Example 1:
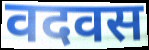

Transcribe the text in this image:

वदवस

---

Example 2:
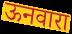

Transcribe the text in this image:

ऊनवारा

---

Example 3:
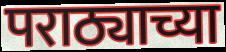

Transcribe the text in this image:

पराठ्याच्या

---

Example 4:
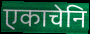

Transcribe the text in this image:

एकाचेनि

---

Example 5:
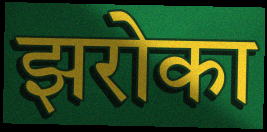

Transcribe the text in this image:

झरोका